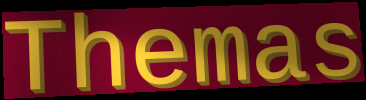
Themas